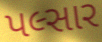
પલ્સાર